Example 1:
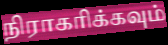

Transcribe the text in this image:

நிராகரிக்கவும்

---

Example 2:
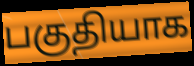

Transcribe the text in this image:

பகுதியாக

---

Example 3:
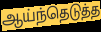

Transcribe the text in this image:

ஆய்ந்தெடுத்த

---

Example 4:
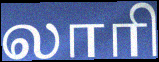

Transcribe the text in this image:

லாரி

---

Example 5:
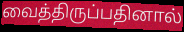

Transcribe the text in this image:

வைத்திருப்பதினால்